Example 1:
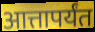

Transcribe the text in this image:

आत्तापर्यंत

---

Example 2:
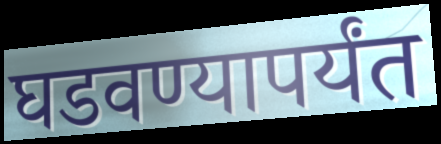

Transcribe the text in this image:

घडवण्यापर्यंत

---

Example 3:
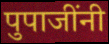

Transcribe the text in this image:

पुपाजींनी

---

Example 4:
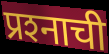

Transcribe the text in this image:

प्रश्‍नाची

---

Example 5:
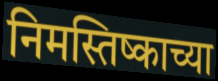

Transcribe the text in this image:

निमस्तिष्काच्या